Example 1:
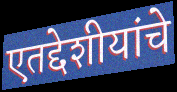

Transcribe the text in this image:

एतद्देशीयांचे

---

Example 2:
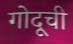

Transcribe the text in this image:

गोदूची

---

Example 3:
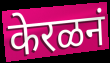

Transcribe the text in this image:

केरळनं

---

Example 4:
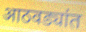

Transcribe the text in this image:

आठवड्यांत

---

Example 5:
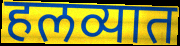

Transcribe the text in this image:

हलव्यात